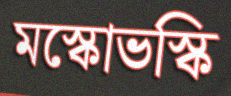
মস্কোভস্কি